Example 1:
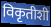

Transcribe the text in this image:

विकृतीशी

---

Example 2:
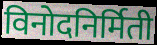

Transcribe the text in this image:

विनोदनिर्मिती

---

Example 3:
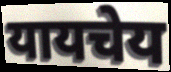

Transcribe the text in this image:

यायचेय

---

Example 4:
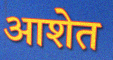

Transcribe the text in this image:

आशेत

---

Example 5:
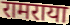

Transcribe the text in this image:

रामराया